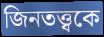
জিনতত্ত্বকে